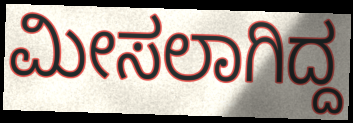
ಮೀಸಲಾಗಿದ್ದ